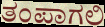
ತಂಪಾಗಲಿ